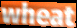
wheat